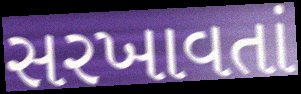
સરખાવતાં